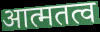
आत्मतत्व